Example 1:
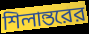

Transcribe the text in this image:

শিলান্তরের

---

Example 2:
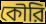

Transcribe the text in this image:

কৌরি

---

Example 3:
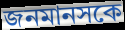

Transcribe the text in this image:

জনমানসকে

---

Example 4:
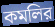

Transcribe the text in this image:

কমলির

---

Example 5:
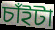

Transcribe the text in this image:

চাঁইটা